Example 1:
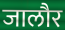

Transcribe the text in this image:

जालौर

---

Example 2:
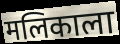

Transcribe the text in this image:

मलिकाला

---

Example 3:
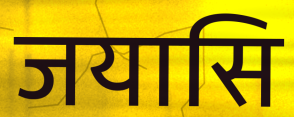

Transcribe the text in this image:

जयासि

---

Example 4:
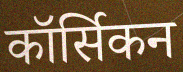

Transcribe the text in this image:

कॉर्सिकन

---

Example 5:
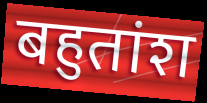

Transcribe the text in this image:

बहुतांश